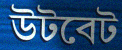
উটবেট